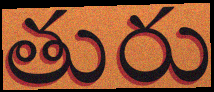
తురు